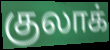
குலாக்